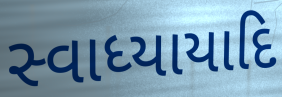
સ્વાધ્યાયાદિ